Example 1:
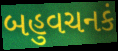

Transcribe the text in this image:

બહુવચનકં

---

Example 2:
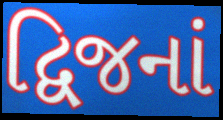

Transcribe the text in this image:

દ્વિજનાં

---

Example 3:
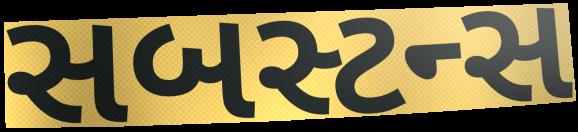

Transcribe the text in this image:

સબસ્ટન્સ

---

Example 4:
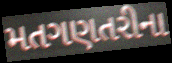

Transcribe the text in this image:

મતગણતરીના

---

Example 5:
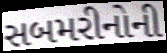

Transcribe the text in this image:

સબમરીનોની